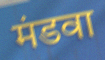
मंडवा